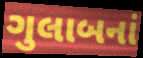
ગુલાબનાં